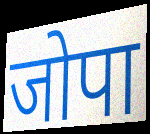
जोपा